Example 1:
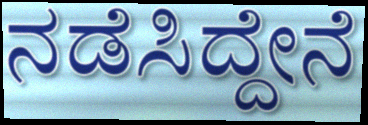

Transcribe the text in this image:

ನಡೆಸಿದ್ದೇನೆ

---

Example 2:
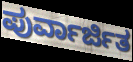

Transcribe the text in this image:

ಪುರ್ವಾರ್ಜಿತ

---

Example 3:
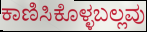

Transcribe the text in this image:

ಕಾಣಿಸಿಕೊಳ್ಳಬಲ್ಲವು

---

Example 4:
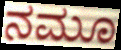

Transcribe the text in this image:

ನಮೂ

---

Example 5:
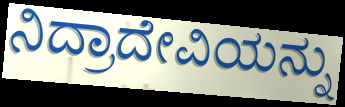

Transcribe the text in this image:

ನಿದ್ರಾದೇವಿಯನ್ನು